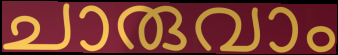
ചാരുവാം